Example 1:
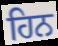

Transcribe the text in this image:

ਹਿਨ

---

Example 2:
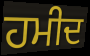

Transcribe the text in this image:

ਹਮੀਦ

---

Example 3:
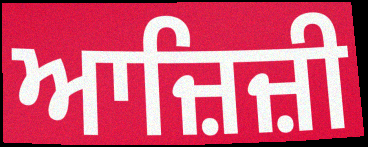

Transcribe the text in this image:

ਆਜ਼ਿਜ਼ੀ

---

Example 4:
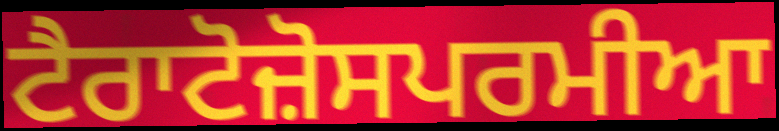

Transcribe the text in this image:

ਟੈਰਾਟੋਜ਼ੋਸਪਰਮੀਆ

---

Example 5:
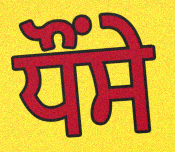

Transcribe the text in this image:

ਧੌਂਸੇ